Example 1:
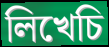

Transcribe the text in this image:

লিখেচি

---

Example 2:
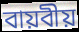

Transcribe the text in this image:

বায়বীয়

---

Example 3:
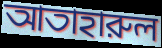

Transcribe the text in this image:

আতাহারুল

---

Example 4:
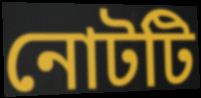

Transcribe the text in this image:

নোটটি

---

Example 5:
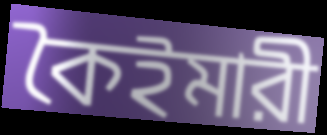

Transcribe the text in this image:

কৈইমারী